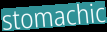
stomachic